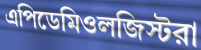
এপিডেমিওলজিস্টরা